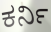
ಕರ್ನಿ